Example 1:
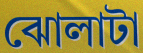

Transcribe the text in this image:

ঝোলাটা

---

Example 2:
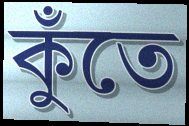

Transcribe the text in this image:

কুঁতে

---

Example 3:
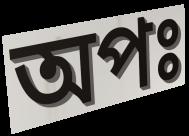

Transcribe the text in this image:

অপঃ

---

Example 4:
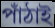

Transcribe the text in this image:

পাঁঠাই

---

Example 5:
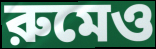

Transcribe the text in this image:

রুমেও